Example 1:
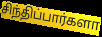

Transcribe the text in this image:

சிந்திப்பார்களா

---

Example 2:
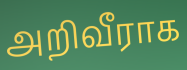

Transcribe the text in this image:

அறிவீராக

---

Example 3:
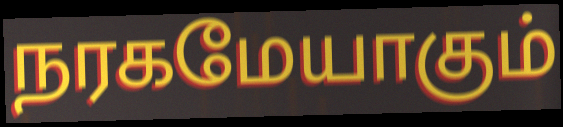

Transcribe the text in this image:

நரகமேயாகும்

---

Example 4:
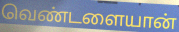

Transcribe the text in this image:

வெண்டளையான்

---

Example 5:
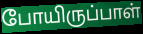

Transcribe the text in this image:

போயிருப்பாள்